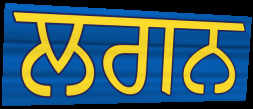
ਲਗਨ